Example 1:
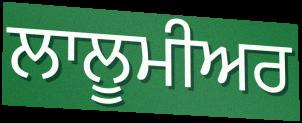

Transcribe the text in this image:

ਲਾਲੂਮੀਅਰ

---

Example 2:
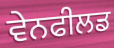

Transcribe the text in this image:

ਵੇਨਫੀਲਡ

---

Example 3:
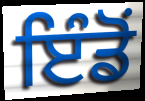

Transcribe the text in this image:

ਇੰਡੋਂ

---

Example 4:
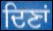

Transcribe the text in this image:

ਦਿਣਾਂ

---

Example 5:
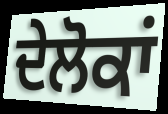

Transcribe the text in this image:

ਦੇਲੋਕਾਂ